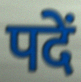
पदें